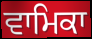
ਵਾਮਿਕਾ